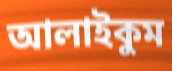
আলাইকুম